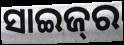
ସାଇଜ୍‌ର